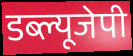
डब्ल्यूजेपी